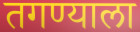
तगण्याला